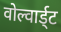
वोल्वार्ड्ट